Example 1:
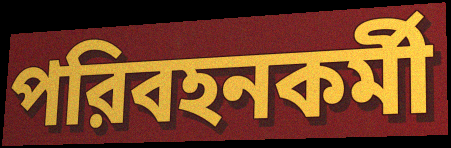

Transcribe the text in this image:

পরিবহনকর্মী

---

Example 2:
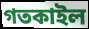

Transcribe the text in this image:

গতকাইল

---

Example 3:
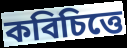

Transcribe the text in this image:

কবিচিত্তে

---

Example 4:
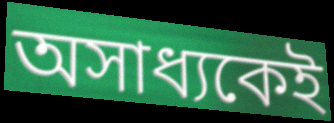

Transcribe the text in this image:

অসাধ্যকেই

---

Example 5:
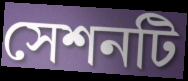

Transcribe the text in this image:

সেশনটি